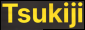
Tsukiji